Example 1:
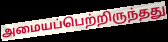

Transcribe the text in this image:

அமையப்பெற்றிருந்தது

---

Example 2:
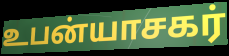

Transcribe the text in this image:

உபன்யாசகர்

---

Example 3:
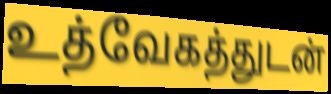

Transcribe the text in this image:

உத்வேகத்துடன்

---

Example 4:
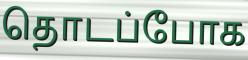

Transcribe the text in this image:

தொடப்போக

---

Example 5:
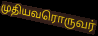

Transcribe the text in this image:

முதியவரொருவர்